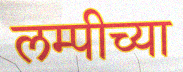
लम्पीच्या